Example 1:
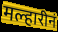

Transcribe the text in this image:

मल्हारीनं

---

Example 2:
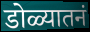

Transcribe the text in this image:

डोळ्यातनं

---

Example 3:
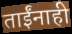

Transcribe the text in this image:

ताईंनाही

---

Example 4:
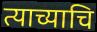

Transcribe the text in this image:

त्याच्याचि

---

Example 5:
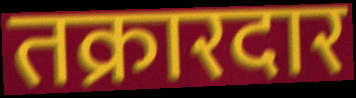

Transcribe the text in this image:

तक्रारदार